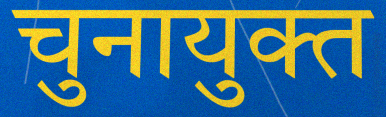
चुनायुक्त